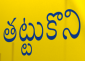
తట్టుకొని